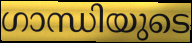
ഗാന്ധിയുടെ